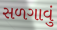
સળગાવું